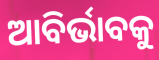
ଆବିର୍ଭାବକୁ